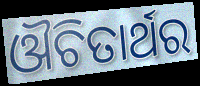
ଔଚିତାର୍ଥର